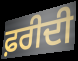
ਫ਼ਰੀਦੀ